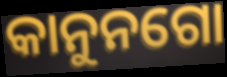
କାନୁନଗୋ